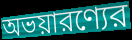
অভয়ারণ্যের